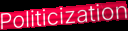
Politicization